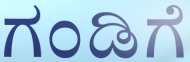
ಗಂಡಿಗೆ